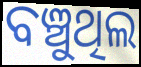
ବଞ୍ଚୁଥିଲ